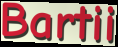
Bartii